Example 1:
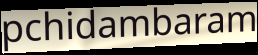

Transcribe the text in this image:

pchidambaram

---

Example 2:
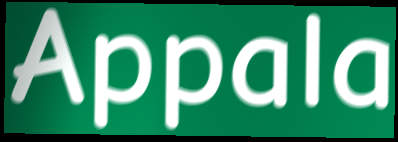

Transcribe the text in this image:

Appala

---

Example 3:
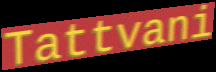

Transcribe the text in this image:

Tattvani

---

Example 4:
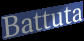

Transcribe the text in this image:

Battuta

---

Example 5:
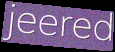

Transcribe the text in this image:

jeered